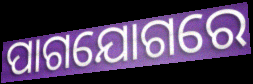
ପାଗଯୋଗରେ